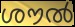
ശൗൽ